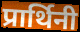
प्रार्थिनी